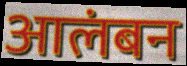
आलंबन